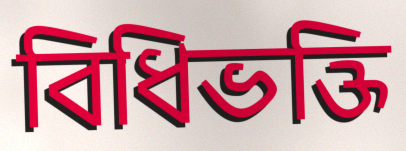
বিধিভক্তি